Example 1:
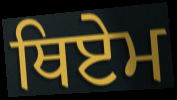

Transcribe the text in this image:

ਥਿਏਮ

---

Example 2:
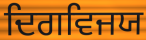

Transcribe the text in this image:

ਦਿਗਵਿਜਯ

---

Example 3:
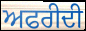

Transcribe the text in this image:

ਅਫਰੀਦੀ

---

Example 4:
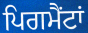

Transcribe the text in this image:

ਪਿਗਮੈਂਟਾਂ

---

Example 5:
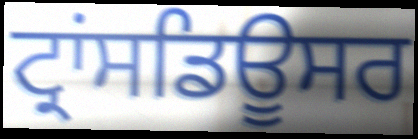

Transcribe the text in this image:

ਟ੍ਰਾਂਸਡਿਊਸਰ